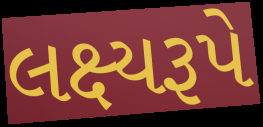
લક્ષ્યરૂપે